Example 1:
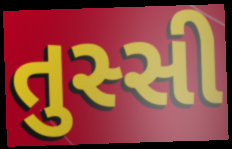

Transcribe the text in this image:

તુસ્સી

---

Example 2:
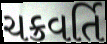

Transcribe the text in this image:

ચક્રવર્તિ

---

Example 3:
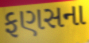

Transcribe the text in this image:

ફણસના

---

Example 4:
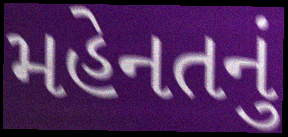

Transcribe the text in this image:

મહેનતનું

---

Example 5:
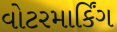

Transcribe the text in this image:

વોટરમાર્કિંગ